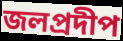
জলপ্রদীপ